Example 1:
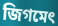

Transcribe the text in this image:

জিগমেৎ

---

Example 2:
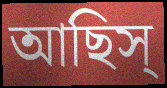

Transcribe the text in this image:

আছিস্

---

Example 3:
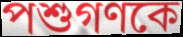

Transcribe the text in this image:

পশুগণকে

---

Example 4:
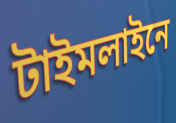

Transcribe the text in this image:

টাইমলাইনে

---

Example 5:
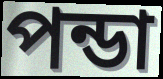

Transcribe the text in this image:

পন্ডা